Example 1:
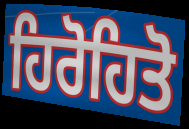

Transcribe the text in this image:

ਹਿਰੋਹਿਤੋ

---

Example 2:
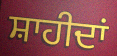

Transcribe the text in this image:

ਸ਼ਾਹੀਦਾਂ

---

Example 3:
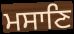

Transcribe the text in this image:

ਮਸਾਣਿ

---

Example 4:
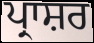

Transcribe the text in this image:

ਪ੍ਰਾਸ਼ਰ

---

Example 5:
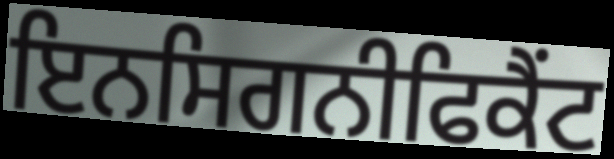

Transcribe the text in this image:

ਇਨਸਿਗਨੀਫਿਕੈਂਟ